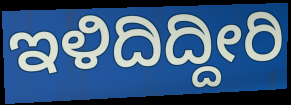
ಇಳಿದಿದ್ದೀರಿ